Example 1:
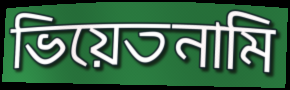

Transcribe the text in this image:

ভিয়েতনামি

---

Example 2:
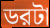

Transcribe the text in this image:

ডরটা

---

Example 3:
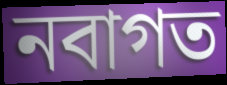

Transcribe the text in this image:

নবাগত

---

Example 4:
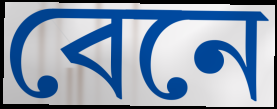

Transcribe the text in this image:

বেনে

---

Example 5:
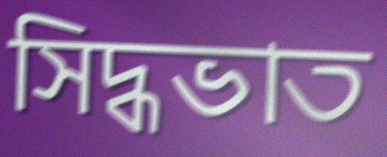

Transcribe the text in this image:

সিদ্ধভাত